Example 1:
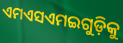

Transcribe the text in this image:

ଏମଏସଏମଇଗୁଡ଼ିକୁ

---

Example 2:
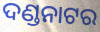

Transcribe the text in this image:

ଦଣ୍ଡନାଟର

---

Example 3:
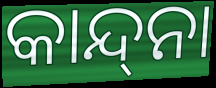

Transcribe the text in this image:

କାନ୍ଦ୍‌ନା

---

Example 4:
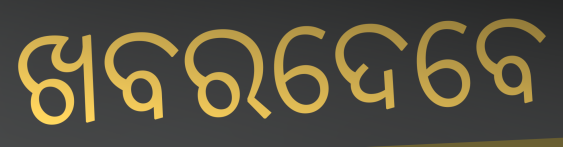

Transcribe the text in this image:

ଖବରଦେବେ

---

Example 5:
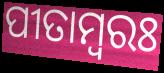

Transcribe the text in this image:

ପୀତାମ୍ୱରଃ